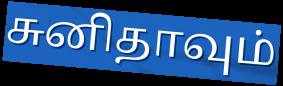
சுனிதாவும்